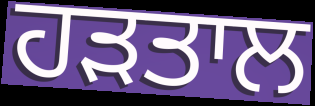
ਹੜਤਾਲ